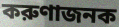
করুণাজনক